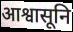
आश्वासूनि